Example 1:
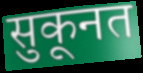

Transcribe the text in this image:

सुकूनत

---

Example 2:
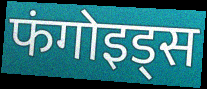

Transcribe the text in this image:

फंगोइड्स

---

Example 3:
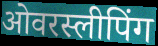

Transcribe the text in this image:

ओवरस्लीपिंग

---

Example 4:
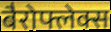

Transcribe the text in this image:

बैरोफ्लेक्स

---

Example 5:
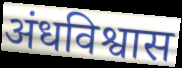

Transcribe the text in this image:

अंधविश्वास